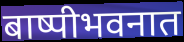
बाष्पीभवनात